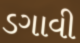
ડગાવી